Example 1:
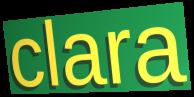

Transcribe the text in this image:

clara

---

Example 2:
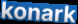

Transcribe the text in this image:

konark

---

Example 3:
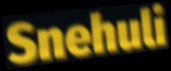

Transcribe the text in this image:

Snehuli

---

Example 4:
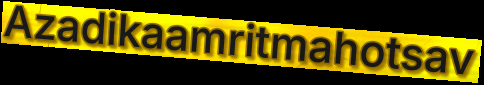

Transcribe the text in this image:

Azadikaamritmahotsav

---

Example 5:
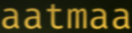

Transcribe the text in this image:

aatmaa